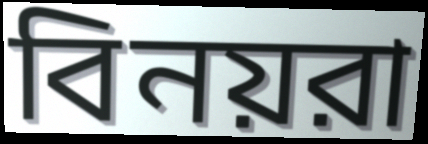
বিনয়রা